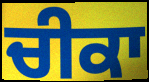
ਚੀਕਾ